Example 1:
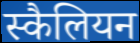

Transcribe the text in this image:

स्कैलियन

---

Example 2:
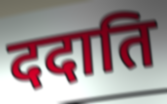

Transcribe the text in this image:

ददाति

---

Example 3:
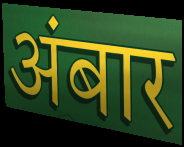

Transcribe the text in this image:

अंबार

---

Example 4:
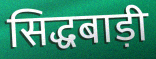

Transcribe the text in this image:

सिद्धबाड़ी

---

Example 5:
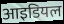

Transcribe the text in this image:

आइडियल